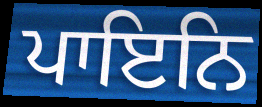
ਪਾਇਨਿ